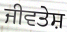
ਜੀਵਤੇਸ਼